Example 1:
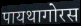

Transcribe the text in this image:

पायथागोरस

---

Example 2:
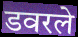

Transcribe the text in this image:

डवरले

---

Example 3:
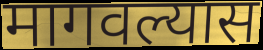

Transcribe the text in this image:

मागवल्यास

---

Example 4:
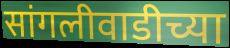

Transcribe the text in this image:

सांगलीवाडीच्या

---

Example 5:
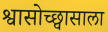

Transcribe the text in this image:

श्वासोच्छ्वासाला